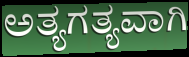
ಅತ್ಯಗತ್ಯವಾಗಿ